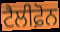
ਟੈਲੀਫ਼ੋਨ